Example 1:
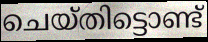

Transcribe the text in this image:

ചെയ്തിട്ടൊണ്ട്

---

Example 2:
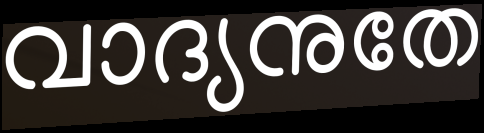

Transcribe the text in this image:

വാദ്യനുതേ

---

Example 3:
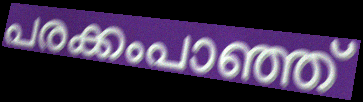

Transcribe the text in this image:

പരക്കംപാഞ്ഞ്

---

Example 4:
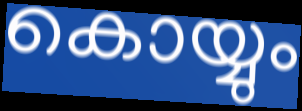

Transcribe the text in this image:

കൊയ്യും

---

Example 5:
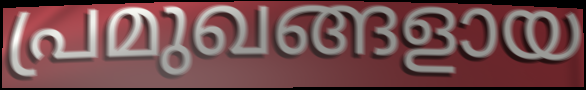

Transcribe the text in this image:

പ്രമുഖങ്ങളായ